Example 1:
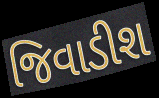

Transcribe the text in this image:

જિવાડીશ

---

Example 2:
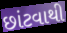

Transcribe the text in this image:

છાંટવાથી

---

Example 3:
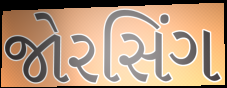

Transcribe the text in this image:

જોરસિંગ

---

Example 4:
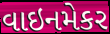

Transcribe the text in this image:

વાઇનમેકર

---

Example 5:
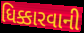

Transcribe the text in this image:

ધિક્કારવાની